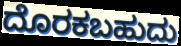
ದೊರಕಬಹುದು